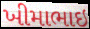
ખીમાભાઇ